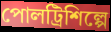
পোলট্রিশিল্পে